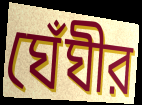
ঘেঁঘীর